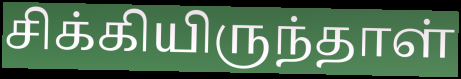
சிக்கியிருந்தாள்